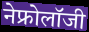
नेफ्रोलॉजी